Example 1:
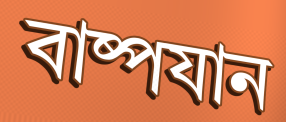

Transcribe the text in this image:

বাষ্পযান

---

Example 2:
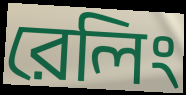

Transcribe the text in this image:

রেলিং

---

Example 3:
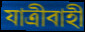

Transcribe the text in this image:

যাত্রীবাহী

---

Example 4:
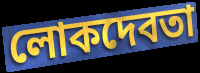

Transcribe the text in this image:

লোকদেবতা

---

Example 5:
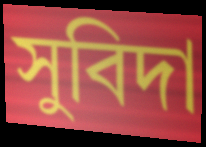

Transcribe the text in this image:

সুবিদা